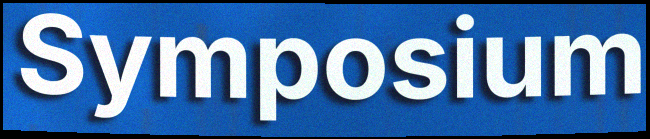
Symposium